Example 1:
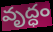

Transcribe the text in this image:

వృద్ధం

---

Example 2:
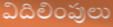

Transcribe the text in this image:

విదిలింపులు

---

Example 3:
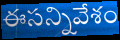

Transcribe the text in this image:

ఈసన్నివేశం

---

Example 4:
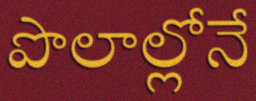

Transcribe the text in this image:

పొలాల్లోనే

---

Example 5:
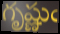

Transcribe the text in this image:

గృష్ణుఁ